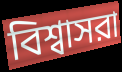
বিশ্বাসরা